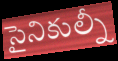
సైనికుల్నీ